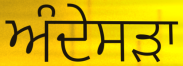
ਅੰਦੇਸੜਾ